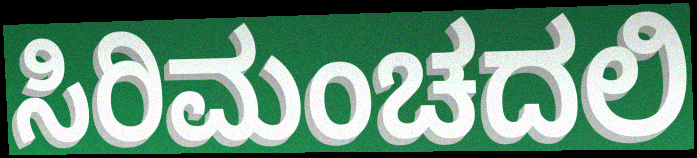
ಸಿರಿಮಂಚದಲಿ